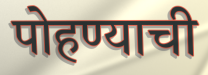
पोहण्याची